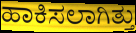
ಹಾಕಿಸಲಾಗಿತ್ತು